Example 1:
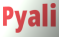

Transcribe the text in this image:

Pyali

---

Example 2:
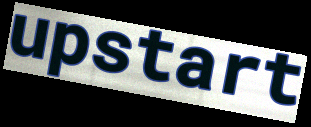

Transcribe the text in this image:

upstart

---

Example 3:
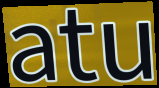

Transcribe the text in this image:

atu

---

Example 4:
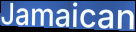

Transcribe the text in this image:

Jamaican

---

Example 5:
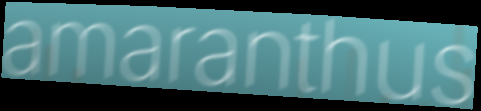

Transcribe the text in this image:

amaranthus